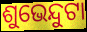
ଶୁଭେନ୍ଦୁଟା